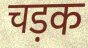
चड़क